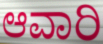
ಆವಾರಿ